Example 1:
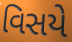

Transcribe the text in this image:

વિસયે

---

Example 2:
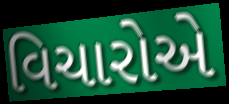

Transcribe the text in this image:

વિચારોએ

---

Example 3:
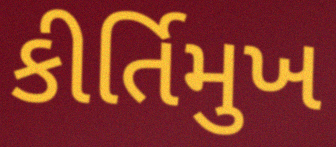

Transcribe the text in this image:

કીર્તિમુખ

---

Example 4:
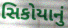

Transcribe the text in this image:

સિકોયાનું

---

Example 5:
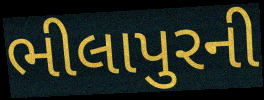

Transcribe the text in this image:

ભીલાપુરની